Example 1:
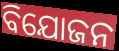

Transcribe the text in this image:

ବିଯୋଜନ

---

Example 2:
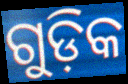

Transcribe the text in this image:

ଗୁଡ଼ିକ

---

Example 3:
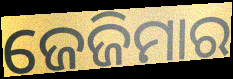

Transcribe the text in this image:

ଜେଜିମାର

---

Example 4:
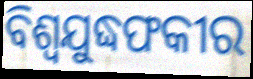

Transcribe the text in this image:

ବିଶ୍ୱଯୁଦ୍ଧଫକୀର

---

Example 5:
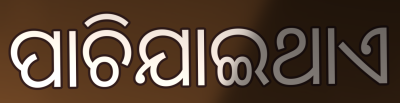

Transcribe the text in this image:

ପାଚିଯାଇଥାଏ